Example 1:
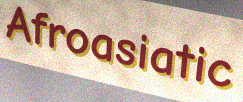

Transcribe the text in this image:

Afroasiatic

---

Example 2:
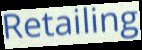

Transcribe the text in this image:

Retailing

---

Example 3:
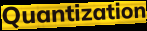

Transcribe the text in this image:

Quantization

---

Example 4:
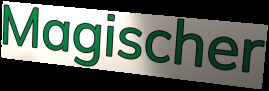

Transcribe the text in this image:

Magischer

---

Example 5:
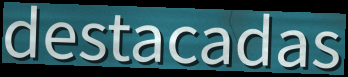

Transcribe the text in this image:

destacadas